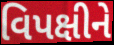
વિપક્ષીને